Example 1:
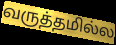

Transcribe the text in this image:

வருத்தமில்ல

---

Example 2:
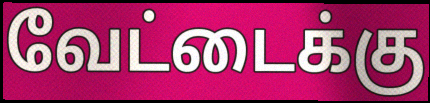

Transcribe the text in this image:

வேட்டைக்கு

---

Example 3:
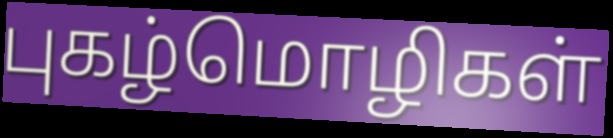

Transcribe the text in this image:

புகழ்மொழிகள்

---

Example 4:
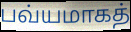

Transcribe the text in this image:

பவ்யமாகத்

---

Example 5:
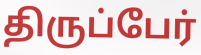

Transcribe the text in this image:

திருப்பேர்